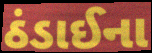
ઠંડાઈના